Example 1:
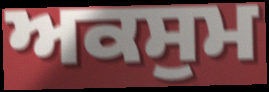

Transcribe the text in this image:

ਅਕਸੁਮ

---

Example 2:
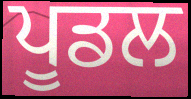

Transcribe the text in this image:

ਪੂਡਲ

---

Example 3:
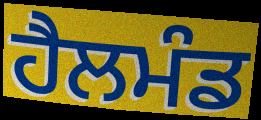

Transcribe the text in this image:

ਹੈਲਮੰਡ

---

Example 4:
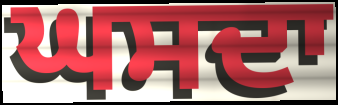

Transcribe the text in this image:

ਘਸਦਾ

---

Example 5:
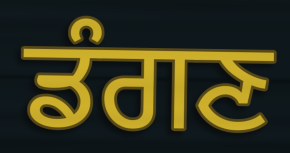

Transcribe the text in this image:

ਡੰਗਣ